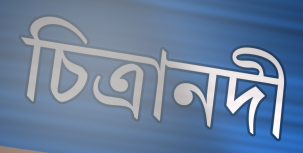
চিত্রানদী